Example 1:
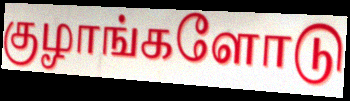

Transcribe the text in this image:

குழாங்களோடு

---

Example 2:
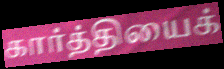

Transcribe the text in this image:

கார்த்தியைக்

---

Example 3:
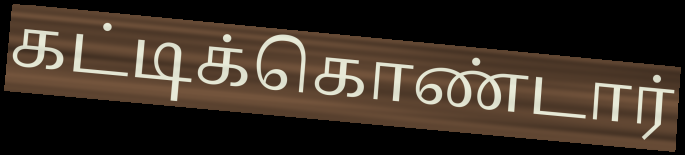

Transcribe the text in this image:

கட்டிக்கொண்டார்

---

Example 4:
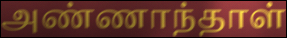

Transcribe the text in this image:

அண்ணாந்தாள்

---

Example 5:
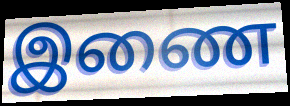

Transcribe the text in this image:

இணை